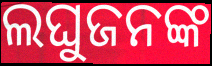
ଲଘୁଜନଙ୍କ